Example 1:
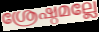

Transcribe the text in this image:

ശ്രേഷ്ഠമല്ലേ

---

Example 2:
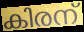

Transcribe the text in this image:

കിരന്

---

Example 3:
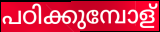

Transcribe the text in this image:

പഠിക്കുമ്പോള്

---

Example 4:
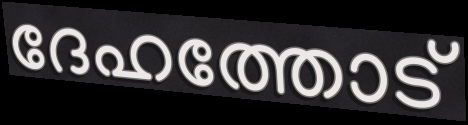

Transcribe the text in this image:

ദേഹത്തോട്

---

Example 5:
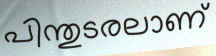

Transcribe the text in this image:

പിന്തുടരലാണ്